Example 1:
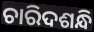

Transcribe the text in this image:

ଚାରିଦଶନ୍ଧି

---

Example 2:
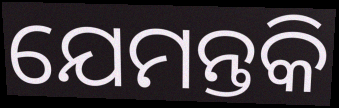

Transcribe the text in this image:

ଯେମନ୍ତକି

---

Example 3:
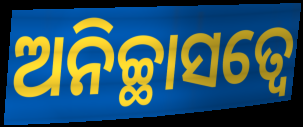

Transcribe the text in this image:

ଅନିଚ୍ଛାସତ୍ୱେ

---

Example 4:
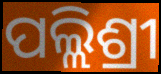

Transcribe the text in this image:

ପଲ୍ଲିଶ୍ରୀ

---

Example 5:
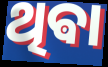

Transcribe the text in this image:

ଥିଵା